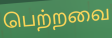
பெற்றவை